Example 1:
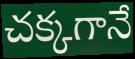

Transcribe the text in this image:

చక్కగానే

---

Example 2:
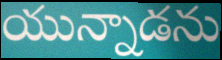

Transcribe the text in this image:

యున్నాడను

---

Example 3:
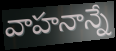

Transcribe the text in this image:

వాహనాన్నే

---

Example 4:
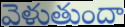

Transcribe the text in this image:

వెళుతుందా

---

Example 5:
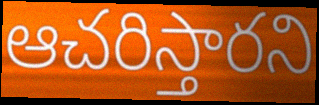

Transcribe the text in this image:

ఆచరిస్తారని